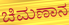
ಚಿಮಣಾನ